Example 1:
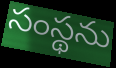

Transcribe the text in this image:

సంస్థను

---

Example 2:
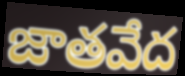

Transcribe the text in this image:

జాతవేద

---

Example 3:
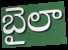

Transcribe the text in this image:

బైలా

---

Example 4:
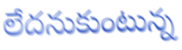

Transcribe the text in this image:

లేదనుకుంటున్న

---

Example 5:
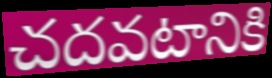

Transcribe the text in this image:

చదవటానికి